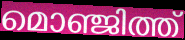
മൊഞ്ജിത്ത്